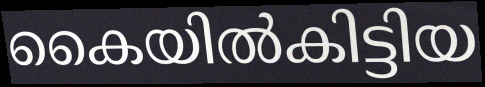
കൈയിൽകിട്ടിയ